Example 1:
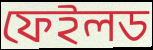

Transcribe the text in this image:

ফেইলড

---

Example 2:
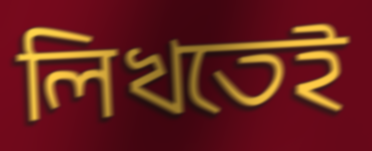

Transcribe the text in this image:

লিখতেই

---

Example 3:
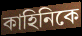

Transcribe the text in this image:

কাহিনিকে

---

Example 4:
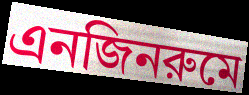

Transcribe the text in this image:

এনজিনরুমে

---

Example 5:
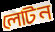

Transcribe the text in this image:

লোটন